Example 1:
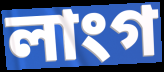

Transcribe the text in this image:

লাংগ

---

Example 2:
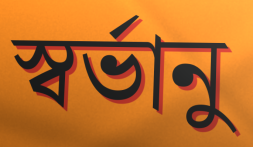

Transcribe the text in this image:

স্বর্ভানু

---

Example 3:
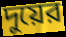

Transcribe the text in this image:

দুয়ের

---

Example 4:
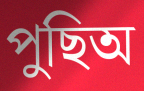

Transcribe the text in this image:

পুছিঅ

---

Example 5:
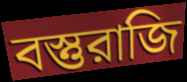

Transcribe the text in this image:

বস্তুরাজি